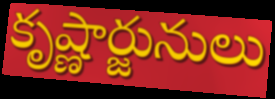
కృష్ణార్జునులు